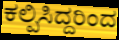
ಕಲ್ಪಿಸಿದ್ದರಿಂದ